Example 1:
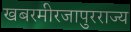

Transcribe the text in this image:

खबरमीरजापुरराज्य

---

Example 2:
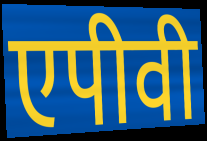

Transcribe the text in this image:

एपीवी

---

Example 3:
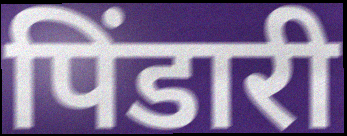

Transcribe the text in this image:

पिंडारी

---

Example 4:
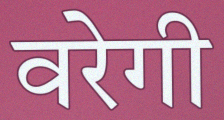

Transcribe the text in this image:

वरेगी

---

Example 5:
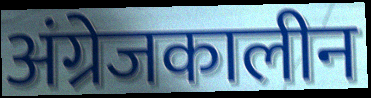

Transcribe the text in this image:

अंग्रेजकालीन